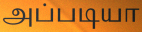
அப்படியா